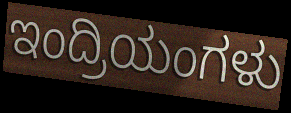
ಇಂದ್ರಿಯಂಗಳು